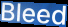
Bleed